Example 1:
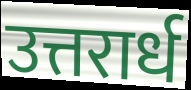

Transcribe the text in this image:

उत्तरार्ध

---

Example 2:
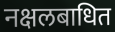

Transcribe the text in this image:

नक्षलबाधित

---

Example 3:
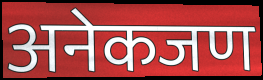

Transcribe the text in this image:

अनेकजण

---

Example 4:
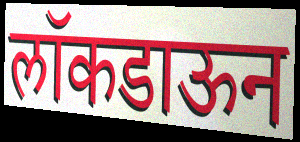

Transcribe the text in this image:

लॉकडाऊन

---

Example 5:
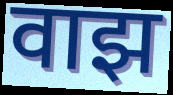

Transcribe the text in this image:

वाझ